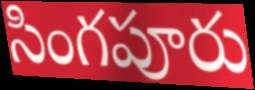
సింగపూరు